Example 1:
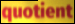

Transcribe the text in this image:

quotient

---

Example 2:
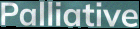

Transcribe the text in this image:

Palliative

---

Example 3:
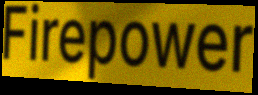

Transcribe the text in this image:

Firepower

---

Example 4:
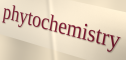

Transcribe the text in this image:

phytochemistry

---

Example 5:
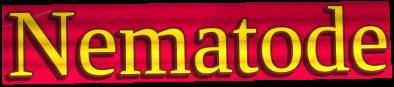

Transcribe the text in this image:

Nematode